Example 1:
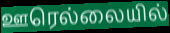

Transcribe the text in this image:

ஊரெல்லையில்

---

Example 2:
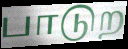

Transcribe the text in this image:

பாடுற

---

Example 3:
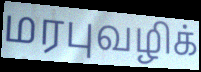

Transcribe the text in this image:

மரபுவழிக்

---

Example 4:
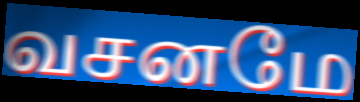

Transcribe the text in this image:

வசனமே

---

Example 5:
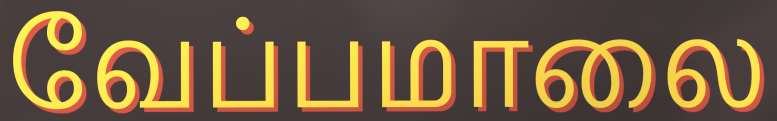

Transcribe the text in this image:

வேப்பமாலை